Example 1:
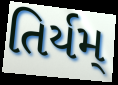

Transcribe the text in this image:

તિર્યમ્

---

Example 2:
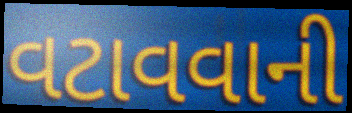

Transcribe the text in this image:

વટાવવાની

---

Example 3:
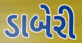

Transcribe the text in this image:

ડાબેરી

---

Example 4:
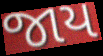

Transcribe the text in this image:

જાય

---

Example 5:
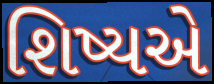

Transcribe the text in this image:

શિષ્યએ